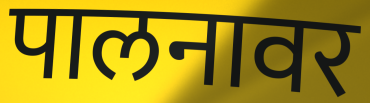
पालनावर